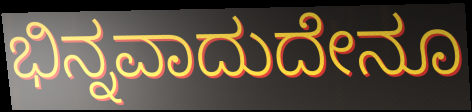
ಭಿನ್ನವಾದುದೇನೂ